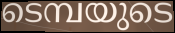
ടെമ്പയുടെ